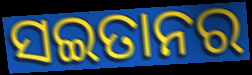
ସଇତାନର